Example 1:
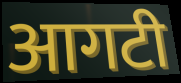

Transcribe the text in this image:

आगटी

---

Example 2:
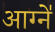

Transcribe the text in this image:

आग्ने॑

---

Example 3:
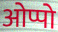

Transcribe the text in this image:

ओप्पो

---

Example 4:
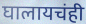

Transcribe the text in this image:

घालायचंही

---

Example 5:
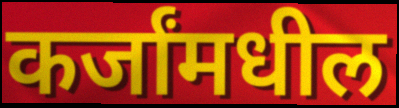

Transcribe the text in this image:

कर्जांमधील